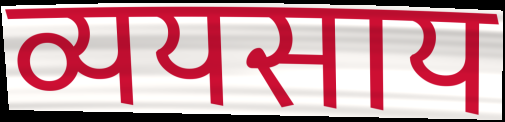
व्ययसाय